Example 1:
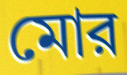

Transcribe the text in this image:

মোর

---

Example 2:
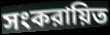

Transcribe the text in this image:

সংকরায়িত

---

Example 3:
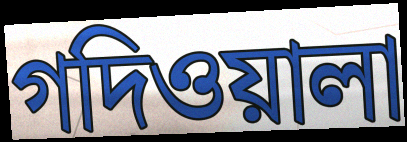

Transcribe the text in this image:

গদিওয়ালা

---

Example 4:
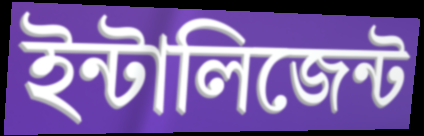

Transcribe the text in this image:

ইন্টালিজেন্ট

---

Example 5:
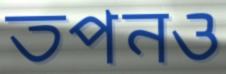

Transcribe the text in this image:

তপনও